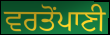
ਵਰਤੋਂਪਾਣੀ